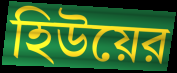
হিউয়ের